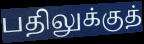
பதிலுக்குத்